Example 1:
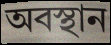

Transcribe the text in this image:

অবস্থান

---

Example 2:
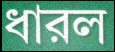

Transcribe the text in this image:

ধারল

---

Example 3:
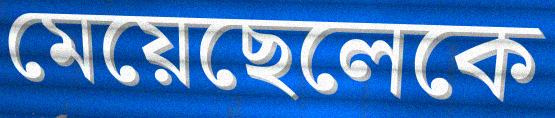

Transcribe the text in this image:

মেয়েছেলেকে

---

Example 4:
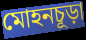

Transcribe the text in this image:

মোহনচূড়া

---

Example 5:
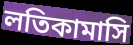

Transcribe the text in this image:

লতিকামাসি